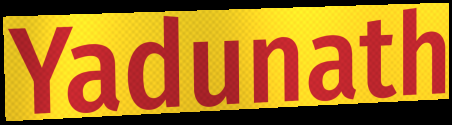
Yadunath